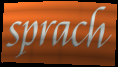
sprach